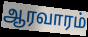
ஆரவாரம்